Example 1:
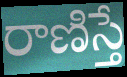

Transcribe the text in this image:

రాణిస్తే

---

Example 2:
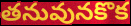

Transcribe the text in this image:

తనువునకొక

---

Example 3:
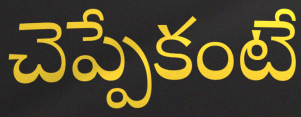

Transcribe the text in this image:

చెప్పేకంటే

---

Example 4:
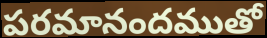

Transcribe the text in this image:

పరమానందముతో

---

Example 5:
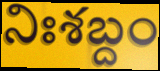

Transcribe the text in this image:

నిఃశబ్దం